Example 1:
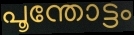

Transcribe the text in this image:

പൂന്തോട്ടം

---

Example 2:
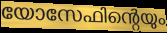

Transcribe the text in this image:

യോസേഫിന്റെയും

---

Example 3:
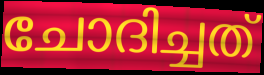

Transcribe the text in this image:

ചോദിച്ചത്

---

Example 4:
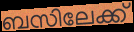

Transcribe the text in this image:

ബസിലേക്ക്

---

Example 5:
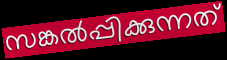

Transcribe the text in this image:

സങ്കൽപ്പിക്കുന്നത്